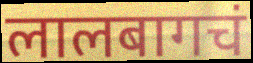
लालबागचं